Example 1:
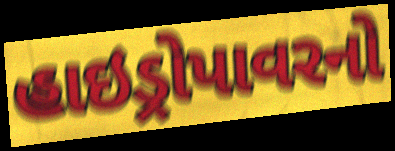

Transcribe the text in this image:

હાઇડ્રોપાવરનો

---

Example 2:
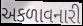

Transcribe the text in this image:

અકળાવનારી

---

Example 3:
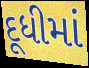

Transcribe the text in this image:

દૂધીમાં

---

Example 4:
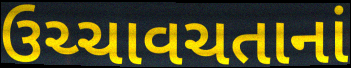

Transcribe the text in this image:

ઉચ્ચાવચતાનાં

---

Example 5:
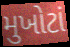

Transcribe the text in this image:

મુખોટાં